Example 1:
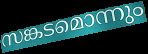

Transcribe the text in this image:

സങ്കടമൊന്നും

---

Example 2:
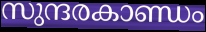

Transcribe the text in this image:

സുന്ദരകാണ്ഡം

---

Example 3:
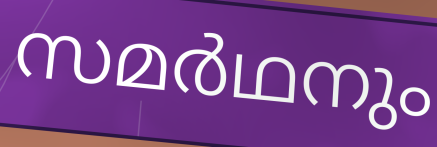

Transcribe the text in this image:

സമർഥനും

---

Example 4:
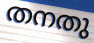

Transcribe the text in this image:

തനതു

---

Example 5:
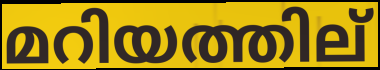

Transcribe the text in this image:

മറിയത്തില്